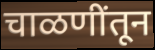
चाळणींतून